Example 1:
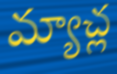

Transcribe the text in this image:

మ్యాచ్ల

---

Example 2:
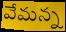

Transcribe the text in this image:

వేమన్న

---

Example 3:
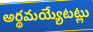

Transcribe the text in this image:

అర్థమయ్యేటట్లు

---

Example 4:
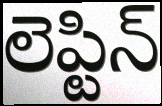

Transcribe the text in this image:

లెప్టిన్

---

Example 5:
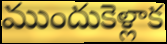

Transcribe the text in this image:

ముందుకెళ్లాక